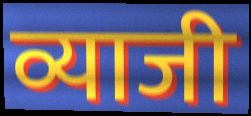
व्याजी